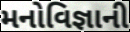
મનોવિજ્ઞાની